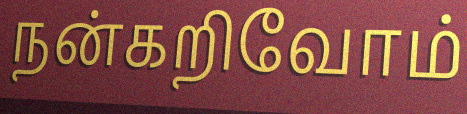
நன்கறிவோம்